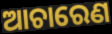
ଆଚାରେଣ